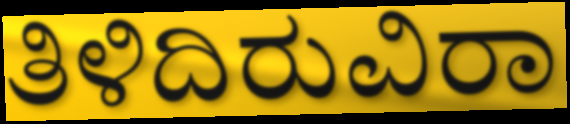
ತಿಳಿದಿರುವಿರಾ